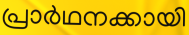
പ്രാർഥനക്കായി